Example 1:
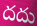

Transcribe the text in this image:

దదు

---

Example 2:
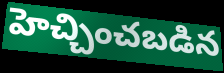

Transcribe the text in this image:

హెచ్చించబడిన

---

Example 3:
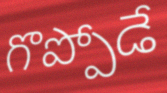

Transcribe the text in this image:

గొప్పోడే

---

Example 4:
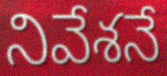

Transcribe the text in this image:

నివేశనే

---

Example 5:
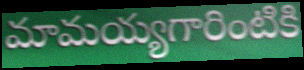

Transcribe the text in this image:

మామయ్యగారింటికి